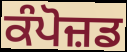
ਕੰਪੋਜ਼ਡ